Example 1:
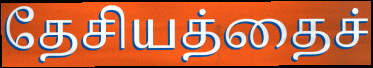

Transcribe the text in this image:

தேசியத்தைச்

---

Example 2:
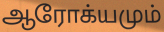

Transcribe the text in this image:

ஆரோக்யமும்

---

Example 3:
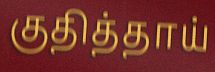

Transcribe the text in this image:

குதித்தாய்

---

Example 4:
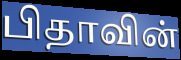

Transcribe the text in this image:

பிதாவின்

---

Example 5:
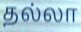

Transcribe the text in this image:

தல்லா